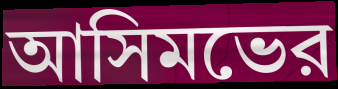
আসিমভের